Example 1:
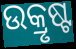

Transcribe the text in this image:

ଉକ୍ରୃଷ୍ଟ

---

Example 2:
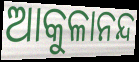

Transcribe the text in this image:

ଆକୁଳାନନ୍ଦ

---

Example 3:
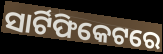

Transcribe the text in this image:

ସାର୍ଟିଫିକେଟରେ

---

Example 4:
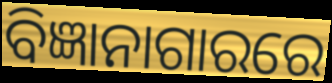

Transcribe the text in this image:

ବିଜ୍ଞାନାଗାରରେ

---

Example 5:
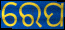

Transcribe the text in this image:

ରେପ